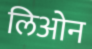
लिओन